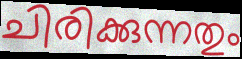
ചിരിക്കുന്നതും